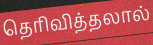
தெரிவித்தலால்